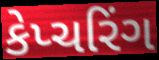
કેપ્ચરિંગ